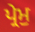
ਪ੍ਰੇਮੁ